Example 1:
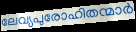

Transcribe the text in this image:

ലേവ്യപുരോഹിതന്മാർ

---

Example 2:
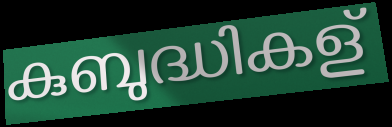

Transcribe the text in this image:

കുബുദ്ധികള്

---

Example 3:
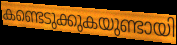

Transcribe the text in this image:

കണ്ടെടുക്കുകയുണ്ടായി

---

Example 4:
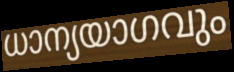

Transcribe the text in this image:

ധാന്യയാഗവും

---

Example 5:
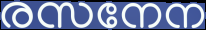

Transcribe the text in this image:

രസനേന